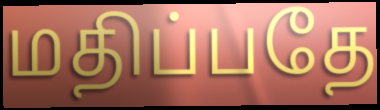
மதிப்பதே